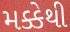
મક્કેથી